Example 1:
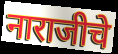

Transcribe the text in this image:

नाराजीचे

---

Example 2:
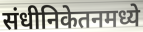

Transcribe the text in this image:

संधीनिकेतनमध्ये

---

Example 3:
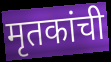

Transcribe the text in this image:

मृतकांची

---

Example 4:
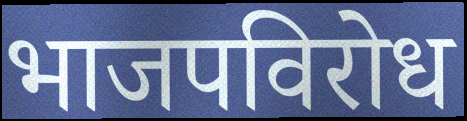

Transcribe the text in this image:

भाजपविरोध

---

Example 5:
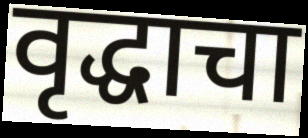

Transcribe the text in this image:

वृद्धाचा